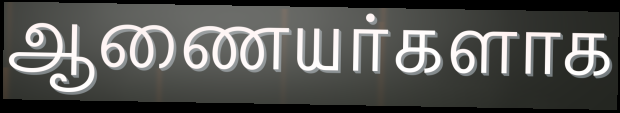
ஆணையர்களாக